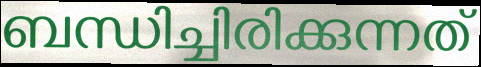
ബന്ധിച്ചിരിക്കുന്നത്